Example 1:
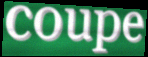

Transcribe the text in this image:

coupe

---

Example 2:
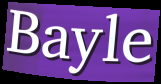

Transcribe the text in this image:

Bayle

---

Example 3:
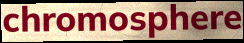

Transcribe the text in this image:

chromosphere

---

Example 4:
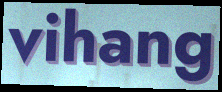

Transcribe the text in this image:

vihang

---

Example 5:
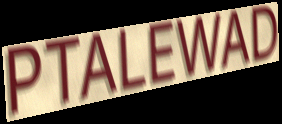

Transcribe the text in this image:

PTALEWAD